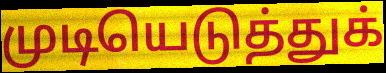
முடியெடுத்துக்